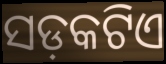
ସଡ଼କଟିଏ